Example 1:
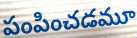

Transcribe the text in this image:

పంపించడమూ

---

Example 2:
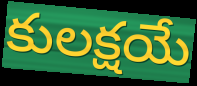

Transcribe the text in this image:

కులక్షయే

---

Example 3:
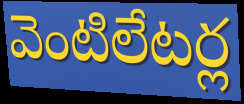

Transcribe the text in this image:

వెంటిలేటర్ల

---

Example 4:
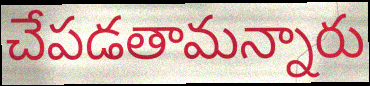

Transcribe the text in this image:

చేపడతామన్నారు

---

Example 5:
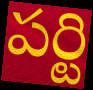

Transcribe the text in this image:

పర్టి